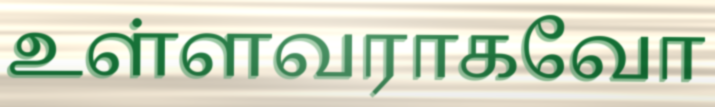
உள்ளவராகவோ